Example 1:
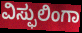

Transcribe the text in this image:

ವಿಸ್ಫುಲಿಂಗಾ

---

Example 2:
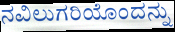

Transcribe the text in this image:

ನವಿಲುಗರಿಯೊಂದನ್ನು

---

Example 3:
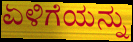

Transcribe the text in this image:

ಏಳಿಗೆಯನ್ನು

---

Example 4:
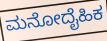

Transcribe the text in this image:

ಮನೋದೈಹಿಕ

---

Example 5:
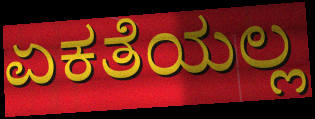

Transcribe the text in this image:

ಏಕತೆಯಲ್ಲ